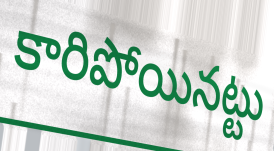
కారిపోయినట్టు